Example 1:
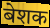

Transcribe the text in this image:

बेशक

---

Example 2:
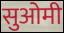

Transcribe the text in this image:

सुओमी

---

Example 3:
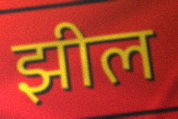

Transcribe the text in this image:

झील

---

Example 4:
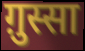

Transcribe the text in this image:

ग़ुस्सा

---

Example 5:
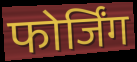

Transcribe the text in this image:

फोर्जिंग